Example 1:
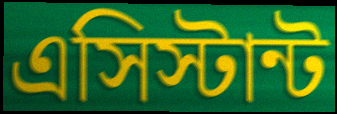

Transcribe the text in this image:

এসিস্টান্ট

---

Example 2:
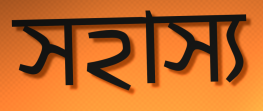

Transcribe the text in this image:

সহাস্য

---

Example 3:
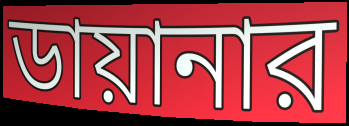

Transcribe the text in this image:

ডায়ানার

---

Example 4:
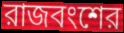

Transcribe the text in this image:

রাজবংশের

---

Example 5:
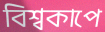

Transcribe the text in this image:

বিশ্বকাপে